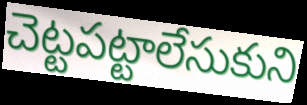
చెట్టపట్టాలేసుకుని